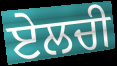
ਏਲਚੀ